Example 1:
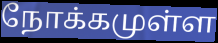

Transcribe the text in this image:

நோக்கமுள்ள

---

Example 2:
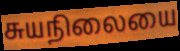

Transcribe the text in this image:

சுயநிலையை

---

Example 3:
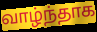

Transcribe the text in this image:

வாழ்ந்தாக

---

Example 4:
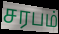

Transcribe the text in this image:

சரபம்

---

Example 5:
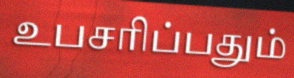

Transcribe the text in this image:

உபசரிப்பதும்